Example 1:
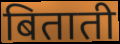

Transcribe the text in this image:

बिताती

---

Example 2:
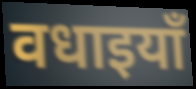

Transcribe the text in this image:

वधाइयाँ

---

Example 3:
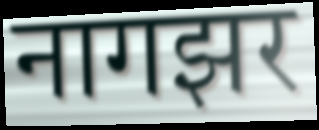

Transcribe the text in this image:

नागझर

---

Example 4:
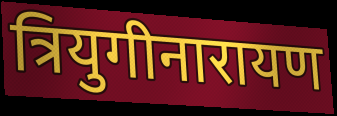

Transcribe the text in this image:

त्रियुगीनारायण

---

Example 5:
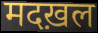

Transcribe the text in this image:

मदख़ल